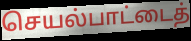
செயல்பாட்டைத்